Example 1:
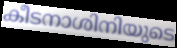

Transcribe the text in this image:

കീടനാശിനിയുടെ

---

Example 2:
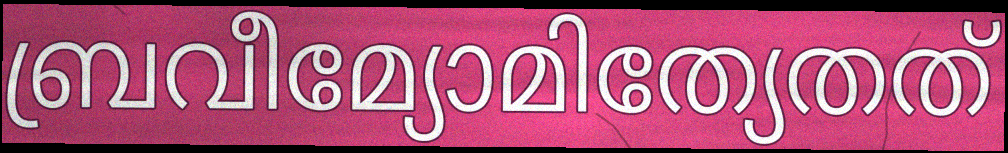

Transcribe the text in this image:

ബ്രവീമ്യോമിത്യേതത്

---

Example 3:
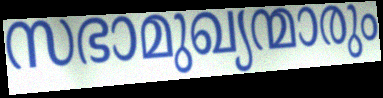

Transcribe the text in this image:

സഭാമുഖ്യന്മാരും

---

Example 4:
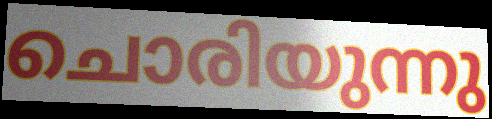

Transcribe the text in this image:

ചൊരിയുന്നു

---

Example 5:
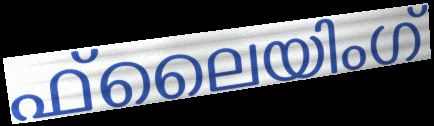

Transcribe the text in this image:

ഫ്‌ലൈയിംഗ്